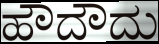
ಹೌದೌದು